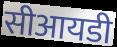
सीआयडी